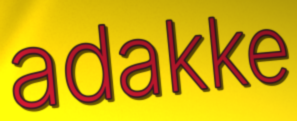
adakke